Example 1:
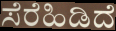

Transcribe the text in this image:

ಸೆರೆಹಿಡಿದೆ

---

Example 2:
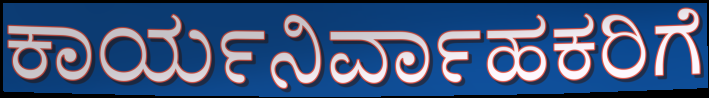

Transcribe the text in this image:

ಕಾರ್ಯನಿರ್ವಾಹಕರಿಗೆ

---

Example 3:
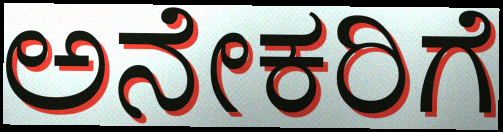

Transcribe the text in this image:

ಅನೇಕರಿಗೆ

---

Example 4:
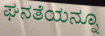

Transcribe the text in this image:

ಘನತೆಯನ್ನೂ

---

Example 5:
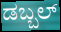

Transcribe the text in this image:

ಡಬ್ಬಲ್